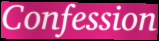
Confession